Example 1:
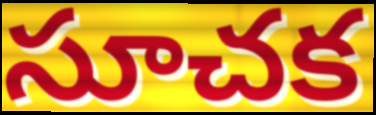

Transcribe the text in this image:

సూచక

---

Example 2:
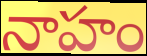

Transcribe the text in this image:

నాహం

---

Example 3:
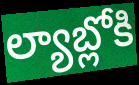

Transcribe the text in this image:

ల్యాబ్లోకి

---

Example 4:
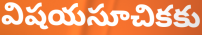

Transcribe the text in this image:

విషయసూచికకు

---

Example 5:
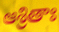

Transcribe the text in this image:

ఆశ్రితాః